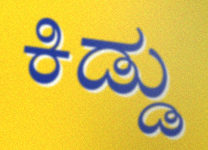
ಕಿಡ್ಡು